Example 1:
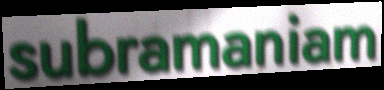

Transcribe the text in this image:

subramaniam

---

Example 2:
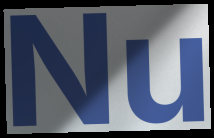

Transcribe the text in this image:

Nu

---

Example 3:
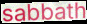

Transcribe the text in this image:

sabbath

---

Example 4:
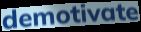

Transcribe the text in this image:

demotivate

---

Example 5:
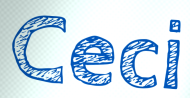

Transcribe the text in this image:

Ceci